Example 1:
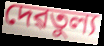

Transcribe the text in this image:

দেৱতুল্য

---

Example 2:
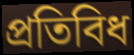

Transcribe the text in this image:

প্ৰতিবিধ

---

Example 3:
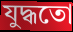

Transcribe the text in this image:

যুদ্ধতো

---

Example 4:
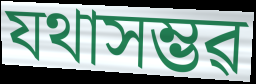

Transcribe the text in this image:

যথাসম্ভৱ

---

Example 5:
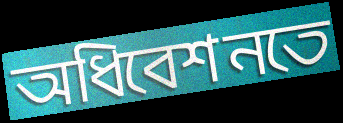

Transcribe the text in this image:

অধিবেশনতে